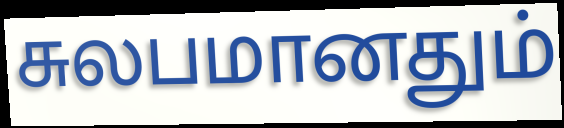
சுலபமானதும்